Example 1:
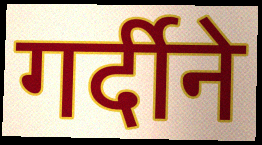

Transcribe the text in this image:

गर्दीने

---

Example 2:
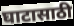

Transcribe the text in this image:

घाटासाठी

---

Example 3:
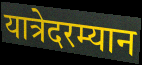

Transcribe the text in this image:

यात्रेदरम्यान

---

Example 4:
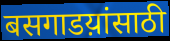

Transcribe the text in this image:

बसगाडय़ांसाठी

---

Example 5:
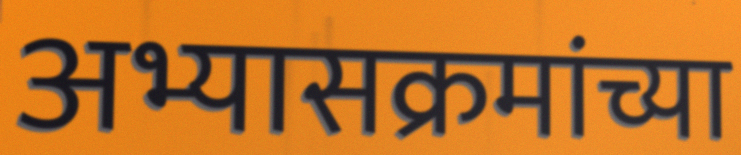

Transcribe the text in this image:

अभ्यासक्रमांच्या